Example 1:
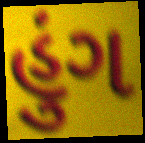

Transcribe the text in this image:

હુંગ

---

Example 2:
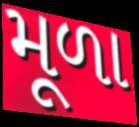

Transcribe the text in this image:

મૂળા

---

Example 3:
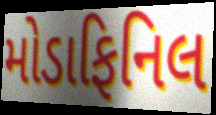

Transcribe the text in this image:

મોડાફિનિલ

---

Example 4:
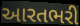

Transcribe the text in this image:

આરતભરી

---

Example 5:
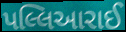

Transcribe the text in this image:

પલ્લિઆરાઈ